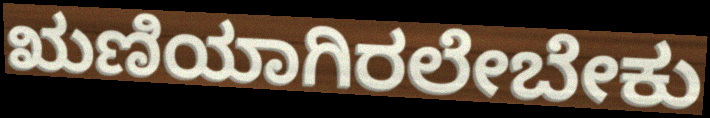
ಋಣಿಯಾಗಿರಲೇಬೇಕು